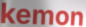
kemon